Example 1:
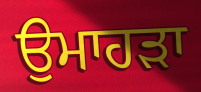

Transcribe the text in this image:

ਉਮਾਹੜਾ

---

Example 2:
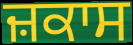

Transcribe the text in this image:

ਜ਼ਕਾਸ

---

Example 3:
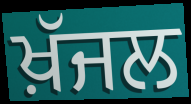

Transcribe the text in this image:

ਖ਼ੱਜਲ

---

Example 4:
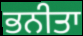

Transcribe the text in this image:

ਭਨੀਤਾ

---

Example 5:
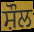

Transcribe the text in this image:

ਸ਼ੌਲ